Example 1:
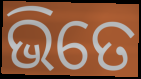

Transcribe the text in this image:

ଭିତେ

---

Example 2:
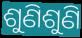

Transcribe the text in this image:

ଶୁଣିଶୁଣି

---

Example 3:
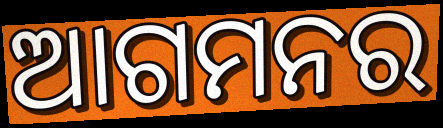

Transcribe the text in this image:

ଆଗମନର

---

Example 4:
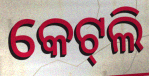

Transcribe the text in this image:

କେଟ୍‍ଲି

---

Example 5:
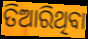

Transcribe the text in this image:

ତିଆରିଥିବା